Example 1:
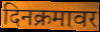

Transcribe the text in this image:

दिनक्रमावर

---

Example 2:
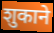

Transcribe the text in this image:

शुकाने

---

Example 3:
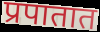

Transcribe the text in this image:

प्रपातात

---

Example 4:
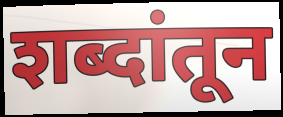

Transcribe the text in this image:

शब्दांतून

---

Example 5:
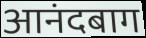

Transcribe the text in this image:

आनंदबाग